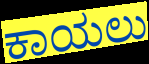
ಕಾಯಲು